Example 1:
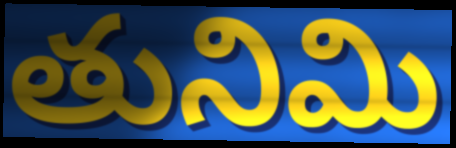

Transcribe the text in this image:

తునిమి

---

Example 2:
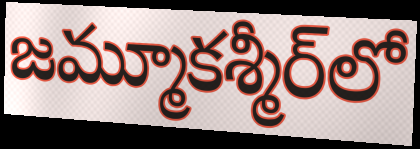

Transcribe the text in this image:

జమ్మూకశ్మీర్‌లో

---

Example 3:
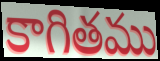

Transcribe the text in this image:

కాగితము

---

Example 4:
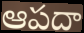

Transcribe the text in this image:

ఆపదా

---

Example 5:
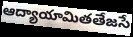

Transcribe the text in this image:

ఆద్యాయామితతేజసే